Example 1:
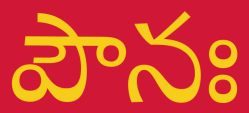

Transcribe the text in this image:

పౌనః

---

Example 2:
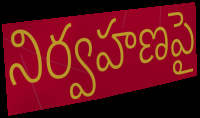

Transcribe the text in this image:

నిర్వహణపై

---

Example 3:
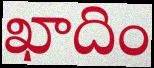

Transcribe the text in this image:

ఖాదిం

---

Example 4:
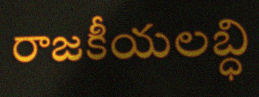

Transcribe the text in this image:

రాజకీయలబ్ధి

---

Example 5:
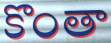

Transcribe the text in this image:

కొంతా